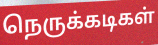
நெருக்கடிகள்